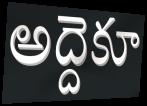
అద్దెకూ